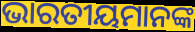
ଭାରତୀୟମାନଙ୍କ